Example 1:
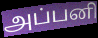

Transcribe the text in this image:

அப்பனி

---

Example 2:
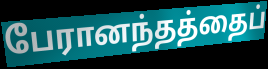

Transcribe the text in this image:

பேரானந்தத்தைப்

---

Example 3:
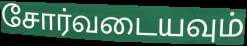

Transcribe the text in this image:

சோர்வடையவும்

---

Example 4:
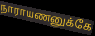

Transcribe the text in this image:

நாராயணனுக்கே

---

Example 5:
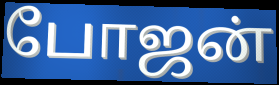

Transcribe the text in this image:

போஜன்